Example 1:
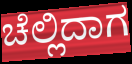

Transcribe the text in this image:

ಚೆಲ್ಲಿದಾಗ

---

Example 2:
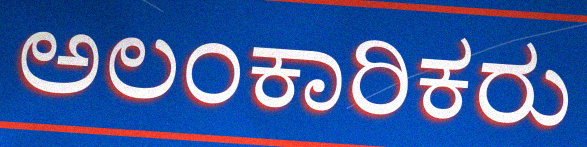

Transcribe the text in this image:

ಅಲಂಕಾರಿಕರು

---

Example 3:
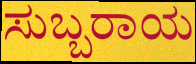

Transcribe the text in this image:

ಸುಬ್ಬರಾಯ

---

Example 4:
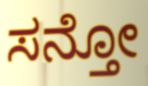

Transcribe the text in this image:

ಸನ್ತೋ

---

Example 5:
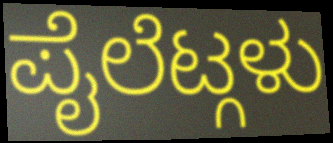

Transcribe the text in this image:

ಪೈಲೆಟ್ಗಳು